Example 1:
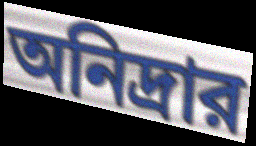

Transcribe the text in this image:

অনিদ্রার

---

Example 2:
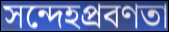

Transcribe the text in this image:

সন্দেহপ্রবণতা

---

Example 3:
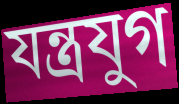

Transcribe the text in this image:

যন্ত্রযুগ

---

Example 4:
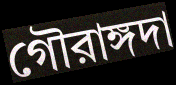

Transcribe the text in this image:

গৌরাঙ্গদা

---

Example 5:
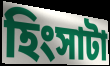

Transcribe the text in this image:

হিংসাটা